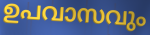
ഉപവാസവും